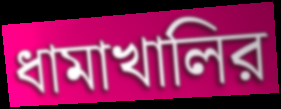
ধামাখালির